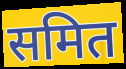
समित